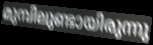
മുമ്പിലുണ്ടായിരുന്നു